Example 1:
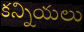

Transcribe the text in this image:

కన్నియలు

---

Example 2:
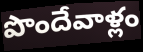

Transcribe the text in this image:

పొందేవాళ్లం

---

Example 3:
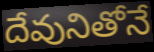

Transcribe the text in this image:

దేవునితోనే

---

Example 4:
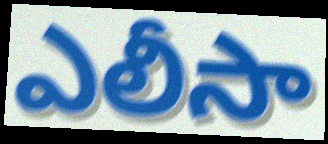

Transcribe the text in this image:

ఎలీసా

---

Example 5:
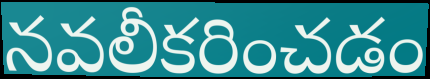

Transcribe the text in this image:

నవలీకరించడం